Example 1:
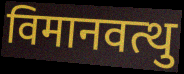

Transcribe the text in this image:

विमानवत्थु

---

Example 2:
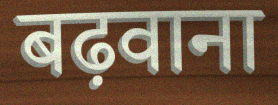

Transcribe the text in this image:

बढ़वाना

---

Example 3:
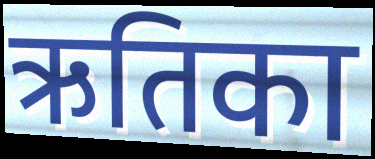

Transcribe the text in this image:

ऋतिका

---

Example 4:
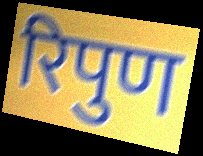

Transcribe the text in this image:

रिपुण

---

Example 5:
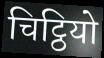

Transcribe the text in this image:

चिट्ठियो